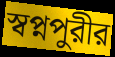
স্বপ্নপুরীর